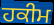
ਹਕੀਮ